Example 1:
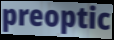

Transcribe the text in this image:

preoptic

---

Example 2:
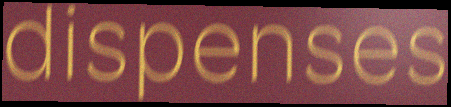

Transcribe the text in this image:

dispenses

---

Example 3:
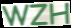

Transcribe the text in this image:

WZH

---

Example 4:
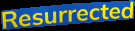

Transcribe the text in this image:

Resurrected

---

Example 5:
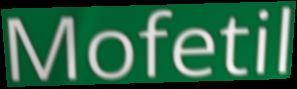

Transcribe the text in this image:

Mofetil